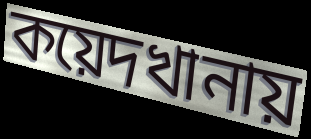
কয়েদখানায়